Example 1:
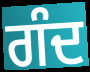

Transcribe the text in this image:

ਗੰਦ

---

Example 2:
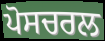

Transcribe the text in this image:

ਪੋਸਚਰਲ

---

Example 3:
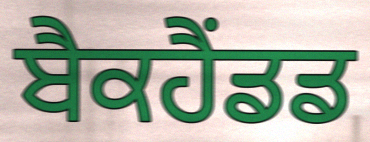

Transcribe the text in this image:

ਬੈਕਹੈਂਡਡ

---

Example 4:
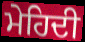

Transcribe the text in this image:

ਮੇਹਿਦੀ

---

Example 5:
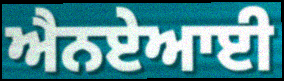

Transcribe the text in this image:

ਐਨਏਆਈ